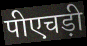
पीएचड़ी